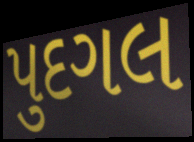
પુદગલ